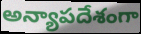
అన్యాపదేశంగా